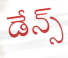
డేన్స్